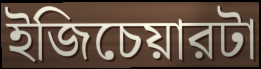
ইজিচেয়ারটা